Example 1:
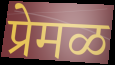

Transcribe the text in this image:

प्रेमळ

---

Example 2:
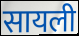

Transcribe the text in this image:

सायली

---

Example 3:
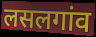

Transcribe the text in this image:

लसलगांव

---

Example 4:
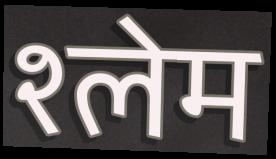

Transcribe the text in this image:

श्लेम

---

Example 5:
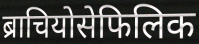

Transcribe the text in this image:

ब्राचियोसेफिलिक